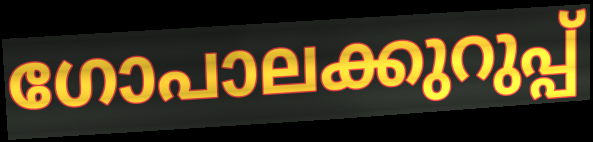
ഗോപാലക്കുറുപ്പ്